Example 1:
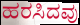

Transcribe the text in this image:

ಹರಸಿದವು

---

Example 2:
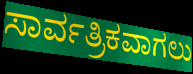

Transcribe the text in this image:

ಸಾರ್ವತ್ರಿಕವಾಗಲು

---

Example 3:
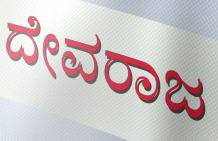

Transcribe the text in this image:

ದೇವರಾಜ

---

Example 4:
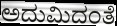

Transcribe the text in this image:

ಅದುಮಿದಂತೆ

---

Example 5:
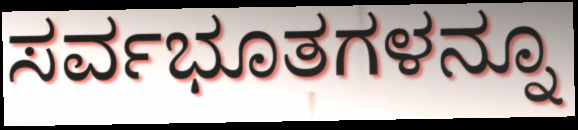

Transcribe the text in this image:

ಸರ್ವಭೂತಗಳನ್ನೂ